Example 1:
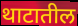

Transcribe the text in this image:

थाटातील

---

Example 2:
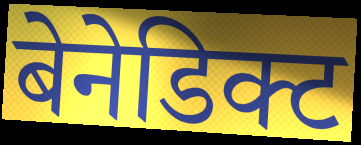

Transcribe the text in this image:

बेनेडिक्ट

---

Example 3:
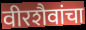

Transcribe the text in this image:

वीरशैवांचा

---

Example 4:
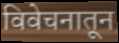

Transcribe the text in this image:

विवेचनातून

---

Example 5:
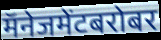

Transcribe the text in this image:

मॅनेजमेंटबरोबर